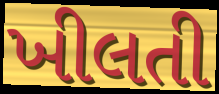
ખીલતી